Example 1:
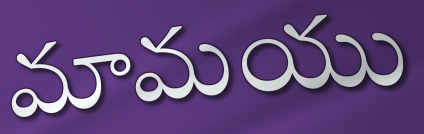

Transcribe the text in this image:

మామయు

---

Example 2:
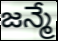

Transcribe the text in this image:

జన్మే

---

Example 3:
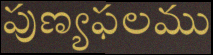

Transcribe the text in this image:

పుణ్యఫలము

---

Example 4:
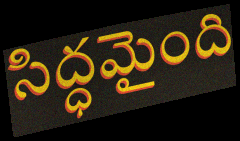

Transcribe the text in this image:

సిద్ధమైంది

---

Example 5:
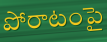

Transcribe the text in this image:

పోరాటంపై